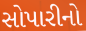
સોપારીનો